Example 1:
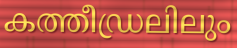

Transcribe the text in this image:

കത്തീഡ്രലിലും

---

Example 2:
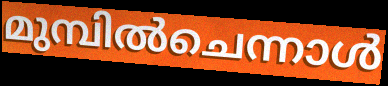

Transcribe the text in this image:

മുമ്പിൽചെന്നാൾ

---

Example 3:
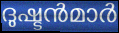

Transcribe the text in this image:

ദുഷ്ടൻമാർ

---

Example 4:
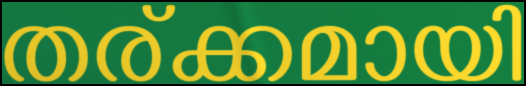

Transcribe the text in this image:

തര്ക്കമായി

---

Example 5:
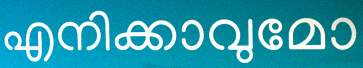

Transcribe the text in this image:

എനിക്കാവുമോ